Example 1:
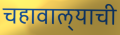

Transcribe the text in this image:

चहावाल्याची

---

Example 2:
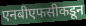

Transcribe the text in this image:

एनबीएफसीकडून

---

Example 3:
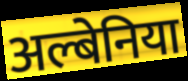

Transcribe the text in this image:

अल्बेनिया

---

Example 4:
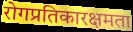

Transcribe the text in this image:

रोगप्रतिकारक्षमता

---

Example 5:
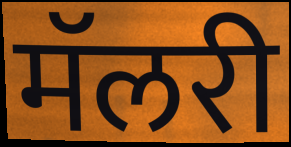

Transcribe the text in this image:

मॅलरी